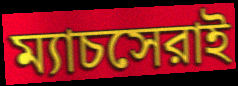
ম্যাচসেরাই